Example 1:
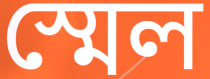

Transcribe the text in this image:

স্মেল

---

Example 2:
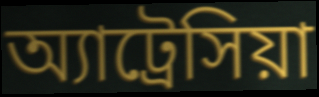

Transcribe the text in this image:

অ্যাট্রেসিয়া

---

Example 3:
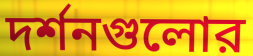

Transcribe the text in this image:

দর্শনগুলোর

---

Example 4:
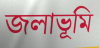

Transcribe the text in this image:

জলাভূমি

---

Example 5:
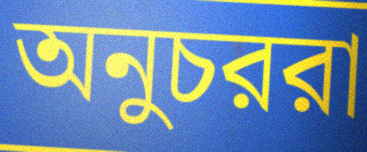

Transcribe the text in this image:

অনুচররা